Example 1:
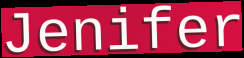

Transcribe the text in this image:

Jenifer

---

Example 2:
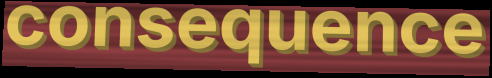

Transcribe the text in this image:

consequence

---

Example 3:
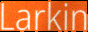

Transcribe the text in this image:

Larkin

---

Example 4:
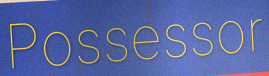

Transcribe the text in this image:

Possessor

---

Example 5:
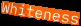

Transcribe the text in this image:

Whiteness